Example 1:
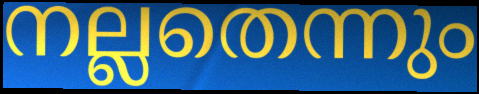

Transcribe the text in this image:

നല്ലതെന്നും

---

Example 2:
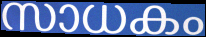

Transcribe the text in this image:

സാധകം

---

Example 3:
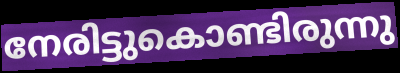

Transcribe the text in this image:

നേരിട്ടുകൊണ്ടിരുന്നു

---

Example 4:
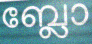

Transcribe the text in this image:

ബ്ലോ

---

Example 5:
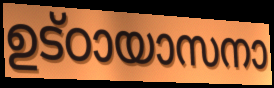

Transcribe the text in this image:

ഉട്ഠായാസനാ